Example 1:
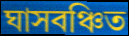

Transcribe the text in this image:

ঘাসবঞ্চিত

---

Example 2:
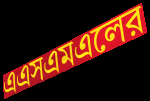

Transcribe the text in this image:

এএসএমএলের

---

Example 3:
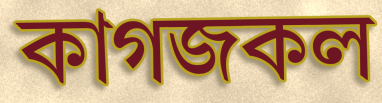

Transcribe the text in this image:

কাগজকল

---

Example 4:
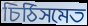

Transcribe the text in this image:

চিঠিসমেত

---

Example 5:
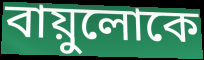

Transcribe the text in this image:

বায়ুলোকে